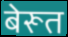
बेरूत